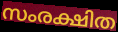
സംരക്ഷിത